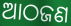
ଆଠଜଣ